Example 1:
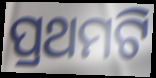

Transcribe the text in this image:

ପ୍ରଥମଟି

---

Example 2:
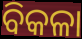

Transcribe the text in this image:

ବିକଳା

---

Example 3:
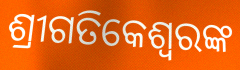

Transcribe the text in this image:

ଶ୍ରୀଗତିକେଶ୍ବରଙ୍କ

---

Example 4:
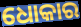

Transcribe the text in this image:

ଧୋକାର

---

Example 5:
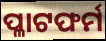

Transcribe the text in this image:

ପ୍ଳାଟଫର୍ମ